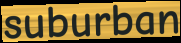
suburban